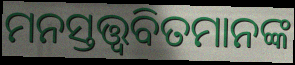
ମନସ୍ତତ୍ତ୍ୱବିତମାନଙ୍କ